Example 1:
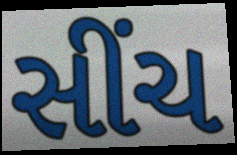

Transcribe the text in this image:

સીંચ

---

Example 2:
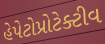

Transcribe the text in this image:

હેપેટોપ્રોટેક્ટીવ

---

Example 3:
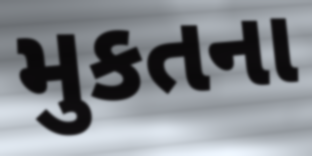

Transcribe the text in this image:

મુકતના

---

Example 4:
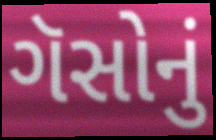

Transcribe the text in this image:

ગૅસોનું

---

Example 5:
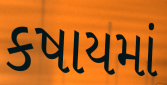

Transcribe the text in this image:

કષાયમાં